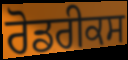
ਰੋਡਰੀਕਸ